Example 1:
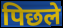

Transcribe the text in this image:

पिछले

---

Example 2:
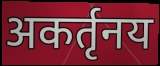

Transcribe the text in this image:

अकर्तृनय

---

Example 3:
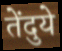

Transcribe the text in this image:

तेंदुये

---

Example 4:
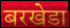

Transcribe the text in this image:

बरखेडा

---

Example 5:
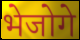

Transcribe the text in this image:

भेजोगे